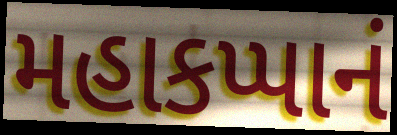
મહાકપ્પાનં